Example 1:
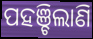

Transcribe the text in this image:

ପହଞ୍ଚିଲାଣି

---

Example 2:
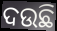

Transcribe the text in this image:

ଦଉଛି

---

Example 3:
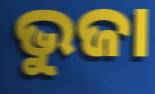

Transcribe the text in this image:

ଭୁଜା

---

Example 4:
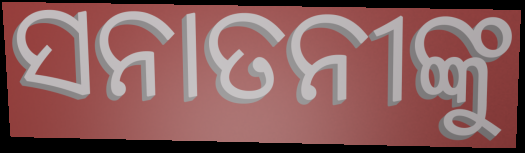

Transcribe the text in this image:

ସନାତନୀଙ୍କୁ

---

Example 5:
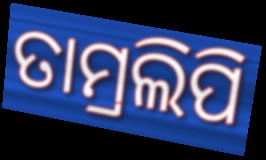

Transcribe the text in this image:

ତାମ୍ରଲିପି